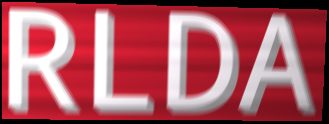
RLDA